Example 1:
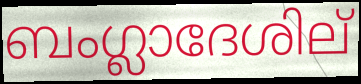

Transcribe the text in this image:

ബംഗ്ലാദേശില്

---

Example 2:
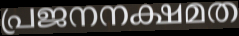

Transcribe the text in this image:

പ്രജനനക്ഷമത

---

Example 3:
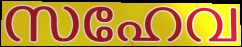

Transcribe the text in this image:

സഹേവ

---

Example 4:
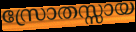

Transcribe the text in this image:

സ്രോതസ്സായ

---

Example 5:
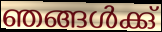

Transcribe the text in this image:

ഞങ്ങൾക്കു്